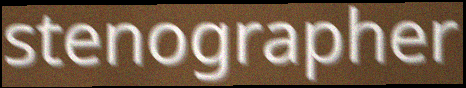
stenographer